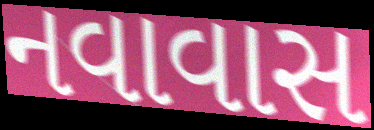
નવાવાસ